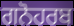
ਗਨੋਹਰਬ